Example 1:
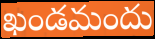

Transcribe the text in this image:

ఖండమందు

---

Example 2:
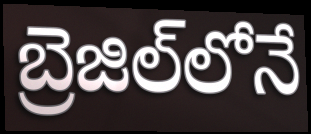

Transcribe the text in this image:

బ్రెజిల్‌లోనే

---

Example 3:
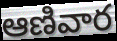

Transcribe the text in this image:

ఆణివార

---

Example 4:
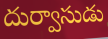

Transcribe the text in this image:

దుర్వాసుడు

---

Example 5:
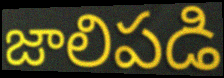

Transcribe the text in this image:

జాలిపడి